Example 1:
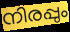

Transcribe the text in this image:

നിരപ്പും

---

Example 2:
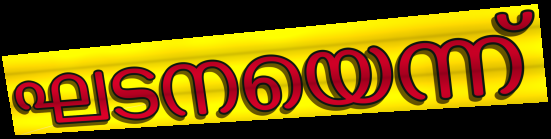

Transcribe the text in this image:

ഘടനയെന്ന്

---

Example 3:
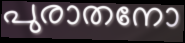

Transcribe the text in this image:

പുരാതനോ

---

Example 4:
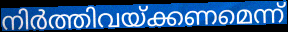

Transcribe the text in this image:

നിർത്തിവയ്ക്കണമെന്ന്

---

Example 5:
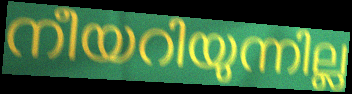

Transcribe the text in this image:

നീയറിയുന്നില്ല